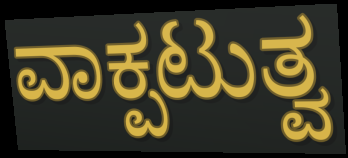
ವಾಕ್ಪಟುತ್ವ